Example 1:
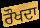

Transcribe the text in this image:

ਰੌਖਦਾ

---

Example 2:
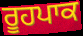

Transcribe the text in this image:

ਰੂਹਪਾਕ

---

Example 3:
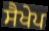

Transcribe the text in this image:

ਸੈਖੇਪ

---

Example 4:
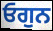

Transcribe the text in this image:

ਓਗੁਨ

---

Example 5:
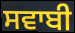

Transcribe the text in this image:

ਸਵਾਬੀ